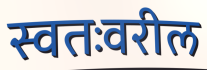
स्वतःवरील